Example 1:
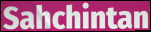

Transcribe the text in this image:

Sahchintan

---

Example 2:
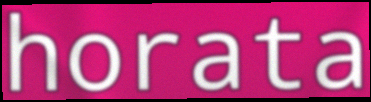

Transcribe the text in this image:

horata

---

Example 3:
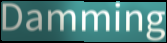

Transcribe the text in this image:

Damming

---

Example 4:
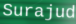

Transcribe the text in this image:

Surajud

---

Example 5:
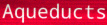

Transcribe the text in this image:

Aqueducts